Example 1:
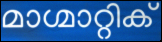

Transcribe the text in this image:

മാഗ്മാറ്റിക്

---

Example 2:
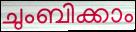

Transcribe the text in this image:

ചുംബിക്കാം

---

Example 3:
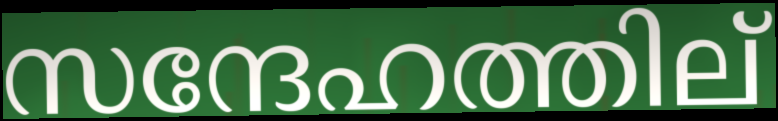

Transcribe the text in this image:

സന്ദേഹത്തില്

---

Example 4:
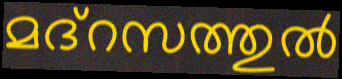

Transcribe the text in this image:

മദ്റസത്തുൽ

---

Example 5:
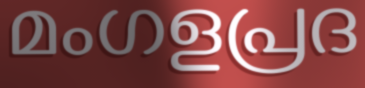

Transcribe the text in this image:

മംഗളപ്രദ